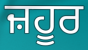
ਜ਼ਹੂਰ